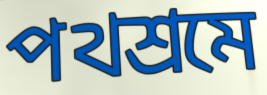
পথশ্রমে